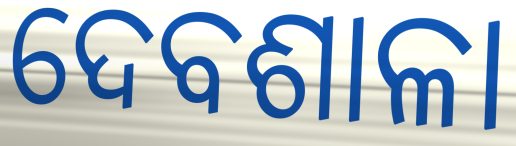
ଦେବଶାଳା